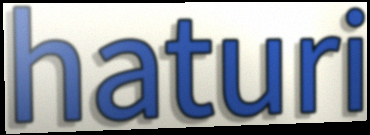
haturi